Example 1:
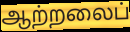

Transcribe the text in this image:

ஆற்றலைப்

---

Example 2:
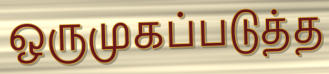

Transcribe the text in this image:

ஒருமுகப்படுத்த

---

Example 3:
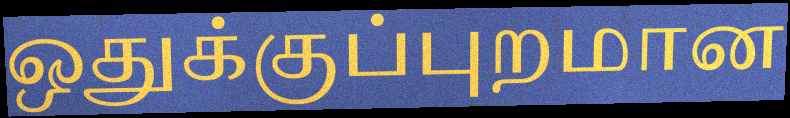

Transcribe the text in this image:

ஒதுக்குப்புறமான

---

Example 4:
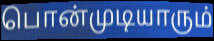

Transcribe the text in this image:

பொன்முடியாரும்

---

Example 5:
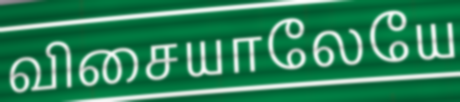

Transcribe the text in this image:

விசையாலேயே